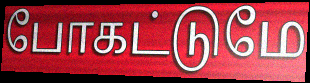
போகட்டுமே